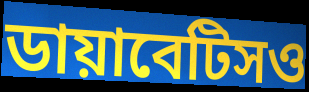
ডায়াবেটিসও